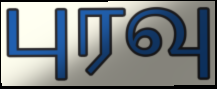
புரவு